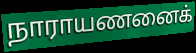
நாராயணனைக்